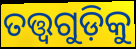
ତତ୍ତ୍ୱଗୁଡ଼ିକୁ